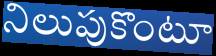
నిలుపుకొంటూ